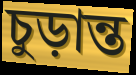
চুড়ান্ত